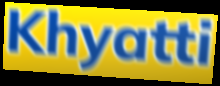
Khyatti